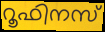
റൂഫിനസ്